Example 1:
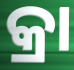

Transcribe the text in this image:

କ୍ରା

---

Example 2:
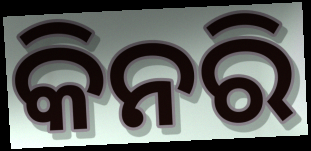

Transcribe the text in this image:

କିନରି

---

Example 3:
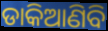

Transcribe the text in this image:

ଡାକିଆଣିବି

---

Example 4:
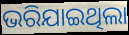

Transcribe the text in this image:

ଭରିଯାଇଥିଲା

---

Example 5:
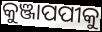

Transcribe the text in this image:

କୁଞ୍ଜାପପୀକୁ